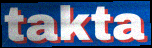
takta